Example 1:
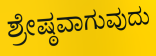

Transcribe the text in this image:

ಶ್ರೇಷ್ಠವಾಗುವುದು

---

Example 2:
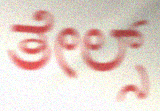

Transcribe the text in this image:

ತೇಲ್ಸ್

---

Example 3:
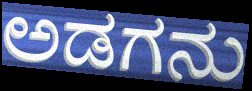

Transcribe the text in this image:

ಅಡಗನು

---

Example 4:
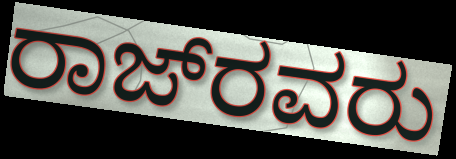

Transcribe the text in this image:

ರಾಜ್‌ರವರು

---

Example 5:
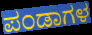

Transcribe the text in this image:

ಪಂಡಾಗಳ